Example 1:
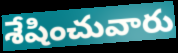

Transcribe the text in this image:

శేషించువారు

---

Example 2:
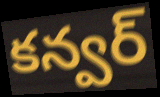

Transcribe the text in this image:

కన్వర్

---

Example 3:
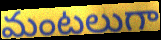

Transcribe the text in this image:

మంటలుగా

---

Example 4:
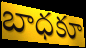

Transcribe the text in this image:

బాధకూ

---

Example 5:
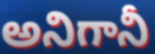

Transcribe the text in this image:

అనిగానీ